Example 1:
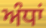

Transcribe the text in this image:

ਅੰਧਾਂ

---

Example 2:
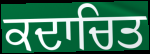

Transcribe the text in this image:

ਕਦਾਚਿਤ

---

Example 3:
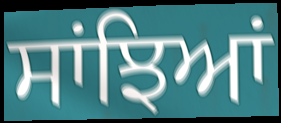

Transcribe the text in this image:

ਸਾਂਝਿਆਂ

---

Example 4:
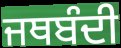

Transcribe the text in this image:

ਜਥਬੰਦੀ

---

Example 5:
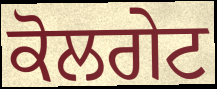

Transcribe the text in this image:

ਕੋਲਗੇਟ